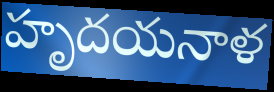
హృదయనాళ